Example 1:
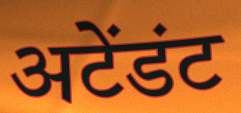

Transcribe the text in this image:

अटेंडंट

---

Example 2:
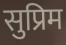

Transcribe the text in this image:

सुप्रिम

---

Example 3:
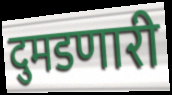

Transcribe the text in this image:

दुमडणारी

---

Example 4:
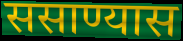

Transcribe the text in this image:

ससाण्यास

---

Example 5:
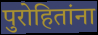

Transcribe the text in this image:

पुरोहितांना